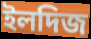
ইলদিজ